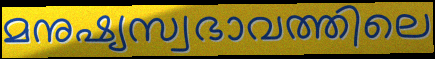
മനുഷ്യസ്വഭാവത്തിലെ